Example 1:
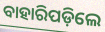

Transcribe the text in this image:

ବାହାରିପଡ଼ିଲେ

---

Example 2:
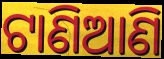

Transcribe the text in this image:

ଟାଣିଆଣି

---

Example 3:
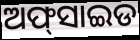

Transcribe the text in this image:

ଅଫ୍‍ସାଇଡ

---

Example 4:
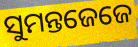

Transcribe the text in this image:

ସୁମନ୍ତଜେଜେ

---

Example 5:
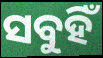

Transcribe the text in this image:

ସବୁହିଁ